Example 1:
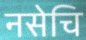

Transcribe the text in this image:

नसेचि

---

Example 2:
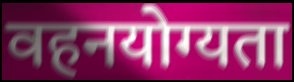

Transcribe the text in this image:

वहनयोग्यता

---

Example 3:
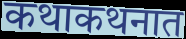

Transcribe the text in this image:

कथाकथनात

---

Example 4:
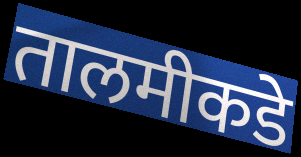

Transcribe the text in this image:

तालमीकडे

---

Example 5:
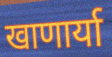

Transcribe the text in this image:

खाणार्या